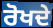
ਰੋਖਦੇ